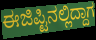
ಈಜಿಪ್ಟಿನಲ್ಲಿದ್ದಾಗ